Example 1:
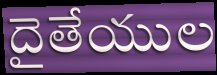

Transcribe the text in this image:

దైతేయుల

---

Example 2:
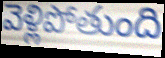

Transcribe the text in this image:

వెళ్లిపోతుంది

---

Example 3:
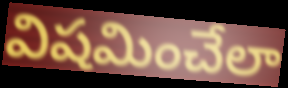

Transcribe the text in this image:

విషమించేలా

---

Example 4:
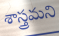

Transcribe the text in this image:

శాస్త్రమని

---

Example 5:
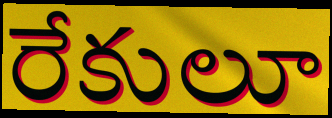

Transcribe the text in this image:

రేకులూ